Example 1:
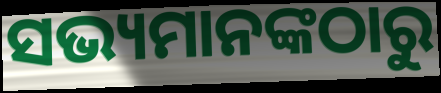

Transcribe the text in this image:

ସଭ୍ୟମାନଙ୍କଠାରୁ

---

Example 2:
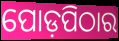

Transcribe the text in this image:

ପୋଡ଼ପିଠାର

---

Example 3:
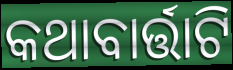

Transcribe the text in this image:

କଥାବାର୍ତ୍ତାଟି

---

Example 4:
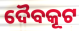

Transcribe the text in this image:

ଦୈବକୂଟ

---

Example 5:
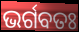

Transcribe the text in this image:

ଭର୍ଗବତଃ